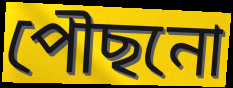
পৌছনো